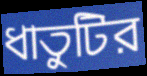
ধাতুটির